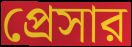
প্রেসার